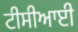
ਟੀਸੀਆਈ